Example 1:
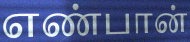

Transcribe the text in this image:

எண்பான்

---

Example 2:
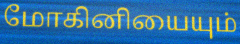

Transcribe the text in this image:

மோகினியையும்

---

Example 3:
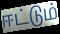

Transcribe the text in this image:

ஈட்டும்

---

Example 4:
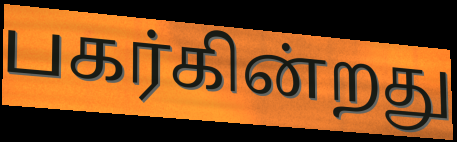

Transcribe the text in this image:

பகர்கின்றது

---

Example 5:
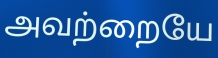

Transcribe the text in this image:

அவற்றையே